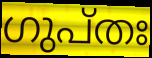
ഗുപ്തഃ